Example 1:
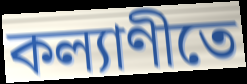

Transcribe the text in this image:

কল্যাণীতে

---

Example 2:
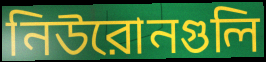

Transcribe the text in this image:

নিউরোনগুলি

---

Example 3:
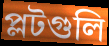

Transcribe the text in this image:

প্লটগুলি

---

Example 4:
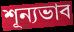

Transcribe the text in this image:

শূন্যভাব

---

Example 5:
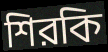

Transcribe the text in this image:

শিরকি